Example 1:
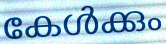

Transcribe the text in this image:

കേൾക്കും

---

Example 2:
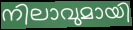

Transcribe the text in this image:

നിലാവുമായി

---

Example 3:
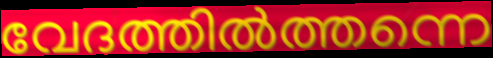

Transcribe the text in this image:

വേദത്തിൽത്തന്നെ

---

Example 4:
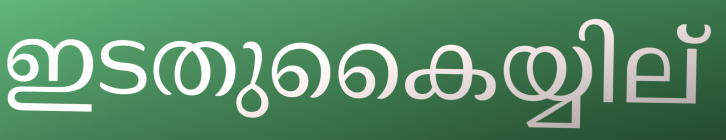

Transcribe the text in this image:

ഇടതുകൈയ്യില്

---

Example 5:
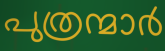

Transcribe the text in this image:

പുത്രന്മാർ